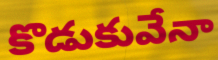
కొడుకువేనా